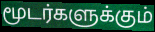
மூடர்களுக்கும்